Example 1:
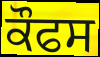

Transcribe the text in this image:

ਕੌਫਸ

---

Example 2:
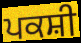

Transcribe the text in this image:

ਪਕਸ਼ੀ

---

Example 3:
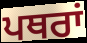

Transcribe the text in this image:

ਪਥਰਾਂ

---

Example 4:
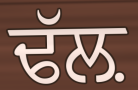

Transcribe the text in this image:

ਢੱਲ਼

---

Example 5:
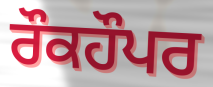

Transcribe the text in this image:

ਰੌਕਹੌਪਰ